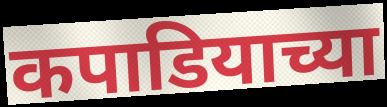
कपाडियाच्या